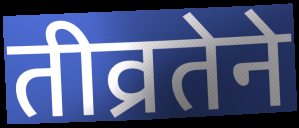
तीव्रतेने